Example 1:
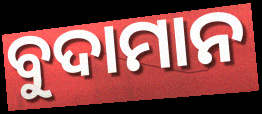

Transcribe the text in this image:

ବୁଦାମାନ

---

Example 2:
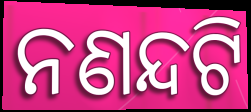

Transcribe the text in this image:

ନଣନ୍ଦଟି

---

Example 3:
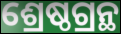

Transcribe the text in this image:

ଶ୍ରେଷ୍ଠଗ୍ରନ୍ଥ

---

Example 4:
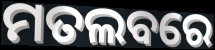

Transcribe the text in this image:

ମତଲବରେ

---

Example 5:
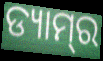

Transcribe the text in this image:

ଡ୍ୟାମ୍‍ର